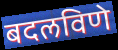
बदलविणे